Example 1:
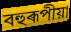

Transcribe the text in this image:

বহুৰূপীয়া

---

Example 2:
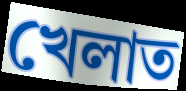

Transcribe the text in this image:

খেলাত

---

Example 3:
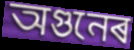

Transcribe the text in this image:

অগুনেৰ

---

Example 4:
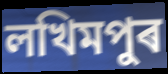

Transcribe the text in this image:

লখিমপুৰ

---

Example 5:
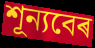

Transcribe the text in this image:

শূন্যবেৰ